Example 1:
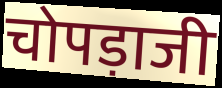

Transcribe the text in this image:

चोपड़ाजी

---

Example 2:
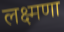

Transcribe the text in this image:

लक्ष्मणा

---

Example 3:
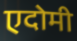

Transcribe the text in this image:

एदोमी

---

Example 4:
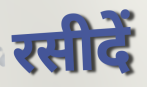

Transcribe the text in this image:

रसीदें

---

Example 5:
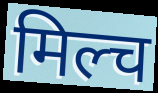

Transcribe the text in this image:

मिल्च